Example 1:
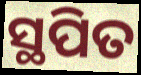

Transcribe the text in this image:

ସ୍ଥପିତ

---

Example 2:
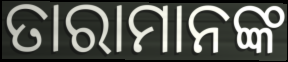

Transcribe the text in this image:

ତାରାମାନଙ୍କ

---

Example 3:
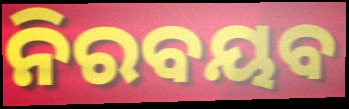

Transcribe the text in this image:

ନିରବୟବ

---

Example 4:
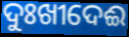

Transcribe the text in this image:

ଦୁଃଖୀଦେଈ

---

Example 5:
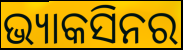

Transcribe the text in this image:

ଭ୍ୟାକସିନର